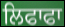
ਲਿਫਾਫਾ